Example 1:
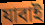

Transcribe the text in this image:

যাবাই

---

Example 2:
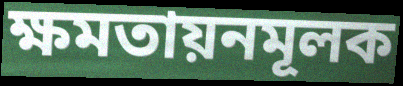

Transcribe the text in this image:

ক্ষমতায়নমূলক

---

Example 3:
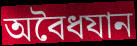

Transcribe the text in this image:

অবৈধযান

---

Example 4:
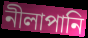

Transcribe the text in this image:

নীলাপানি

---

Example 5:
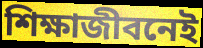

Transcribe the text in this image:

শিক্ষাজীবনেই